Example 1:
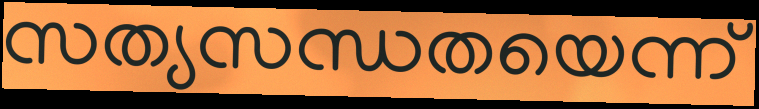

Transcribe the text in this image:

സത്യസന്ധതയെന്ന്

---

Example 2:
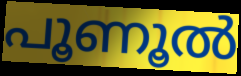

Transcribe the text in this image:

പൂണൂൽ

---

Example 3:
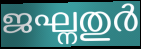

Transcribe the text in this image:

ജഘ്നതുർ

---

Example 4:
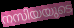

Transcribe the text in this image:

നസിയയുടെ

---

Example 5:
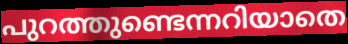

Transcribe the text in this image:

പുറത്തുണ്ടെന്നറിയാതെ